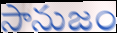
సానుజం